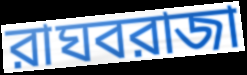
রাঘবরাজা